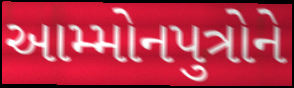
આમ્મોનપુત્રોને